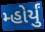
મ્હોર્યું